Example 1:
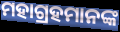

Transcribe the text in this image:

ମହାଗ୍ରହମାନଙ୍କ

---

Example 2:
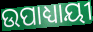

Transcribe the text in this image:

ଉପାଧ୍ୟାୟୀ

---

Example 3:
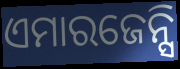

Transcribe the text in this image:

ଏମାରଜେନ୍ସି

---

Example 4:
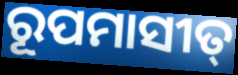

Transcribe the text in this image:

ରୂପମାସୀତ୍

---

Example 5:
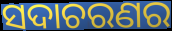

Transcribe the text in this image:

ସଦାଚରଣର